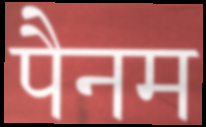
पैनम